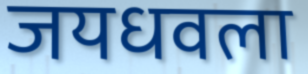
जयधवला